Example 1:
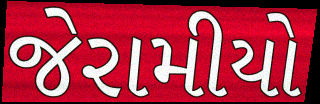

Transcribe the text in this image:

જેરામીયો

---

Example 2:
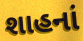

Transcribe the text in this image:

શાહનાં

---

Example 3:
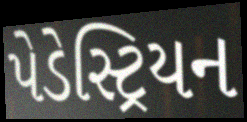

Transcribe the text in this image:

પેડેસ્ટ્રિયન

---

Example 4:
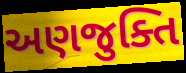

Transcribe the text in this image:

અણજુક્તિ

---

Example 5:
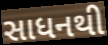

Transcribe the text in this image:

સાધનથી